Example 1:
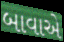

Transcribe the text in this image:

બાવાએ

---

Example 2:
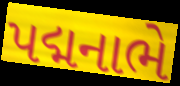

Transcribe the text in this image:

પદ્મનાભે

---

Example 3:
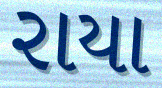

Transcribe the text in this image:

રાયા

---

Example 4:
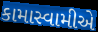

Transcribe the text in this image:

કામાસ્વામીએ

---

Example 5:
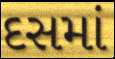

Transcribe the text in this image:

દસમાં